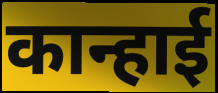
कान्हाई